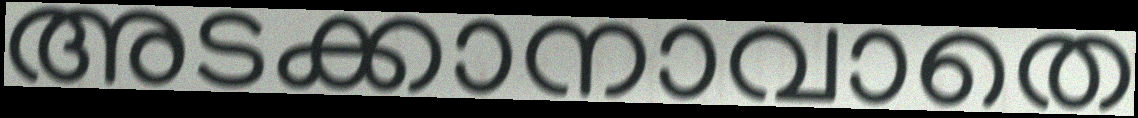
അടക്കാനാവാതെ